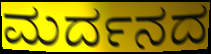
ಮರ್ದನದ